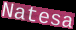
Natesa